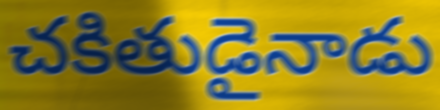
చకితుడైనాడు